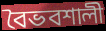
বৈভবশালী